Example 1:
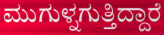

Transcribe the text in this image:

ಮುಗುಳ್ನಗುತ್ತಿದ್ದಾರೆ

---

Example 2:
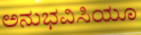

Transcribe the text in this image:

ಅನುಭವಿಸಿಯೂ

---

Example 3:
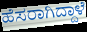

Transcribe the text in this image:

ಹೆಸರಾಗಿದ್ದಾಳೆ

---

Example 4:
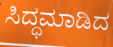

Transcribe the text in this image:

ಸಿದ್ಧಮಾಡಿದ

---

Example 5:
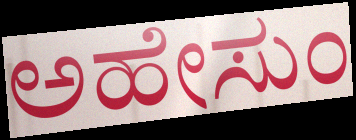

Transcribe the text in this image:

ಅಹೇಸುಂ